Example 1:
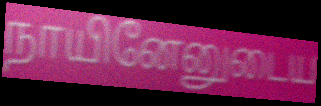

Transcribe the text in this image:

நாயினேனுடைய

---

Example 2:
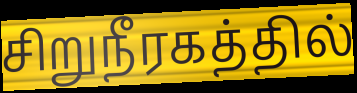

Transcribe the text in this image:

சிறுநீரகத்தில்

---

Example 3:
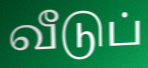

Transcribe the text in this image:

வீடுப்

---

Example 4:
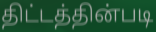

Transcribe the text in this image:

திட்டத்தின்படி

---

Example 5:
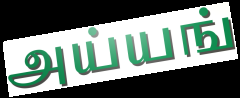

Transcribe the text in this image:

அய்யங்